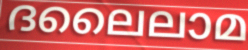
ദലൈലാമ